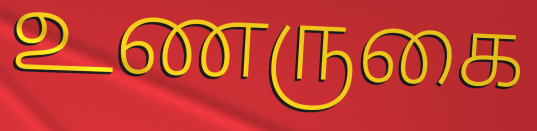
உணருகை